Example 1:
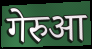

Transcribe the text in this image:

गेरुआ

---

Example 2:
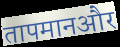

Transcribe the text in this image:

तापमानऔर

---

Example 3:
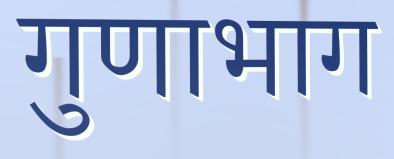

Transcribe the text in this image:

गुणाभाग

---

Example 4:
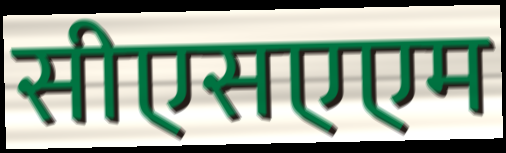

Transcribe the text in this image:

सीएसएएम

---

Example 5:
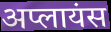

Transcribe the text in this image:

अप्लायंस